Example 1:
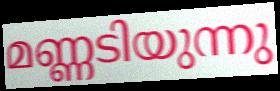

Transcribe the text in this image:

മണ്ണടിയുന്നു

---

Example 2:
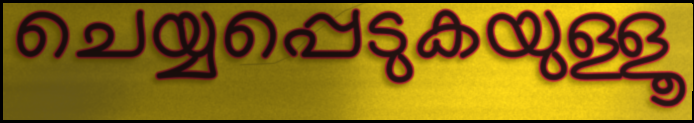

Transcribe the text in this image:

ചെയ്യപ്പെടുകയുള്ളൂ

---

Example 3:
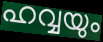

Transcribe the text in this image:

ഹവ്വയും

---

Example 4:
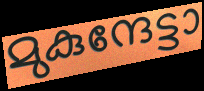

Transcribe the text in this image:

മുകുന്ദേട്ടാ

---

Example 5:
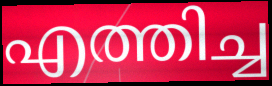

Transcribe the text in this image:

എത്തിച്ച